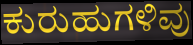
ಕುರುಹುಗಳಿವು